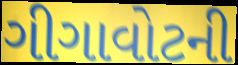
ગીગાવોટની